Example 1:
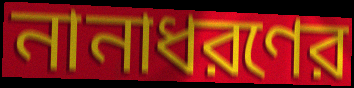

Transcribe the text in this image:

নানাধরণের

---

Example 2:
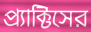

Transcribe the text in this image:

প্র্যাক্টিসের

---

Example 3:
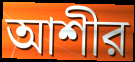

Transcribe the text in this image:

আশীর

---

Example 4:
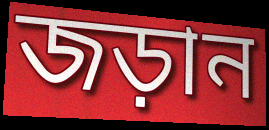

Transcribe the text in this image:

জড়ান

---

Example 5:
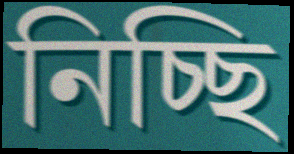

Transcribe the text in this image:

নিচ্ছি